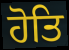
ਹੋਤਿ